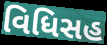
વિધિસહ